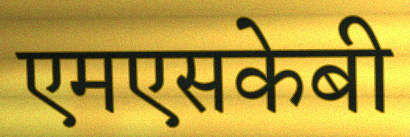
एमएसकेबी